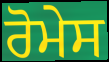
ਰੋਮੇਸ